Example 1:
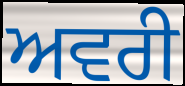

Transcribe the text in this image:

ਅਵਰੀ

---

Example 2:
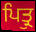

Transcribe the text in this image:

ਪਿਤ੍ਰੁ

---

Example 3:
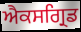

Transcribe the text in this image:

ਐਕਸਗ੍ਰਿਡ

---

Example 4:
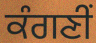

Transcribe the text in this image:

ਕੰਗਣੀਂ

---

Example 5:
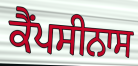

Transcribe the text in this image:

ਕੈਂਪਸੀਨਾਸ